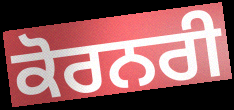
ਕੋਰਨਰੀ